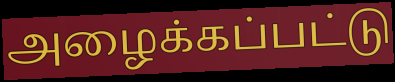
அழைக்கப்பட்டு